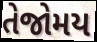
તેજોમય